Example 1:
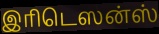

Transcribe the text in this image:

இரிடெஸன்ஸ்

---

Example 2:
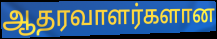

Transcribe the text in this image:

ஆதரவாளர்களான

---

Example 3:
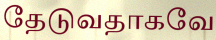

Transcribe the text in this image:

தேடுவதாகவே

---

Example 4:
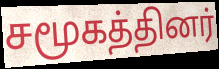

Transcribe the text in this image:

சமூகத்தினர்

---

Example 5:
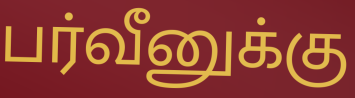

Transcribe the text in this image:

பர்வீனுக்கு